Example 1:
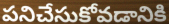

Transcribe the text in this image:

పనిచేసుకోవడానికి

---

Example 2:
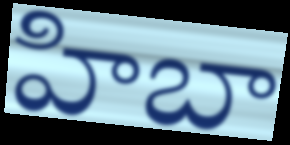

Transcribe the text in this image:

హిబా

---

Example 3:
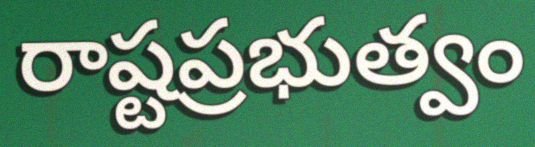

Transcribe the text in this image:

రాష్టప్రభుత్వం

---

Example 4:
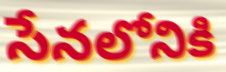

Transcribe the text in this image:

సేనలోనికి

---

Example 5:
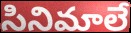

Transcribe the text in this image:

సినిమాలే